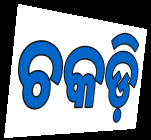
ଚକଡ଼ି